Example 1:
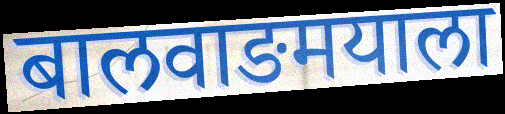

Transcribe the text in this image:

बालवाङमयाला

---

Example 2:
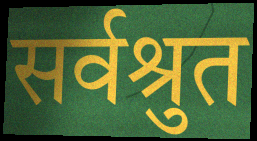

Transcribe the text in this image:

सर्वश्रुत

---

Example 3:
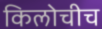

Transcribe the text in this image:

किलोचीच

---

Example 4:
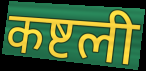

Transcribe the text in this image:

कष्टली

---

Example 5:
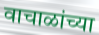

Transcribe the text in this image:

वाचाळांच्या